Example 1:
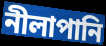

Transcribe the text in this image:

নীলাপানি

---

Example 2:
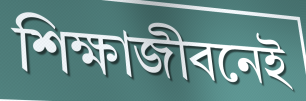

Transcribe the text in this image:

শিক্ষাজীবনেই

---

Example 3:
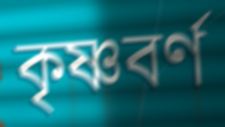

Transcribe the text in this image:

কৃষ্ণবর্ণ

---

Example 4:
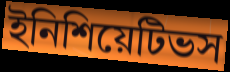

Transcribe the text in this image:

ইনিশিয়েটিভস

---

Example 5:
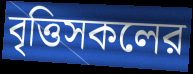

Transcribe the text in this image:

বৃত্তিসকলের